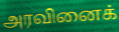
அரவினைக்